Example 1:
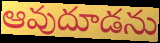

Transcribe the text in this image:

ఆవుదూడను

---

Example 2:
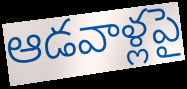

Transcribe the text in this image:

ఆడవాళ్లపై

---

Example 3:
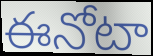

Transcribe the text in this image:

ఈనోటా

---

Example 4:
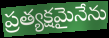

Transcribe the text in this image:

ప్రత్యక్షమైనేను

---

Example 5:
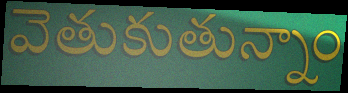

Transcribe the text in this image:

వెతుకుతున్నాం